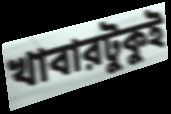
খাবারটুকুই